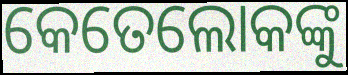
କେତେଲୋକଙ୍କୁ